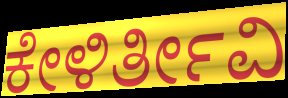
ಕೇಳಿರ್ತೀವಿ